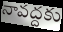
నావద్దకు